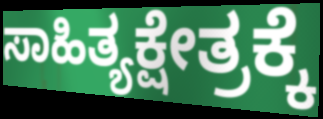
ಸಾಹಿತ್ಯಕ್ಷೇತ್ರಕ್ಕೆ